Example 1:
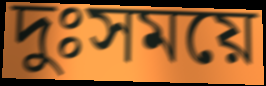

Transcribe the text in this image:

দুঃসময়ে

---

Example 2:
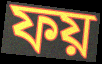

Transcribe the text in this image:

ফয়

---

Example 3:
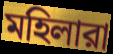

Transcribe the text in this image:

মহিলারা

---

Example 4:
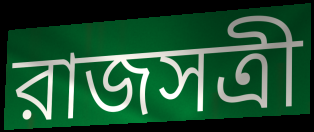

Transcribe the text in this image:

রাজসত্রী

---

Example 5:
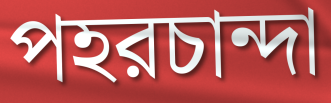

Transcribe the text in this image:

পহরচান্দা